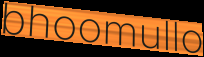
bhoomullo